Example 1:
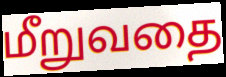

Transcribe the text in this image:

மீறுவதை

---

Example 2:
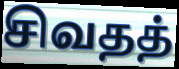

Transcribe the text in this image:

சிவதத்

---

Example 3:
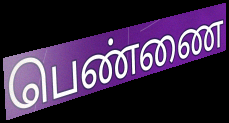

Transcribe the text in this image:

பெண்ணை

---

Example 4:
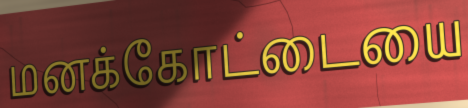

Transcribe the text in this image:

மனக்கோட்டையை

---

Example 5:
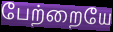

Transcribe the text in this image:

பேற்றையே